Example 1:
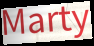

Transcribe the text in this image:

Marty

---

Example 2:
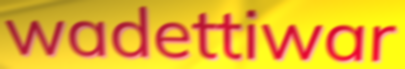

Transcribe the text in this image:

wadettiwar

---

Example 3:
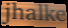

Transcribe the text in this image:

jhalke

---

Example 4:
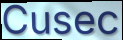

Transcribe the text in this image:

Cusec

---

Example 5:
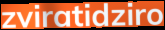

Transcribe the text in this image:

zviratidziro